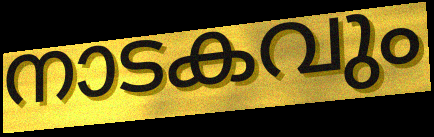
നാടകവും